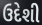
ઉદેશી